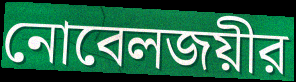
নোবেলজয়ীর